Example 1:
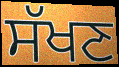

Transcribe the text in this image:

ਸੱਖਣ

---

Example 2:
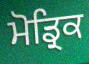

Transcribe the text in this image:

ਮੋਡ੍ਰਿਕ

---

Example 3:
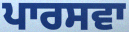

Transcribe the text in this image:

ਪਾਰਸਵਾ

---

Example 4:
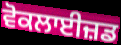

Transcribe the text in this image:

ਵੋਕਲਾਈਜ਼ਡ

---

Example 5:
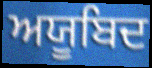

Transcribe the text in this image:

ਅਯੂਬਿਦ